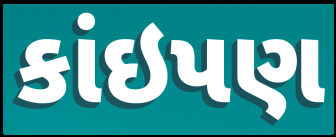
કાંઇપણ